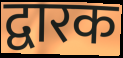
द्वारक